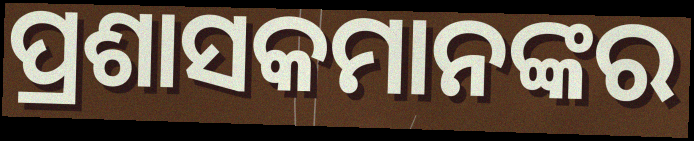
ପ୍ରଶାସକମାନଙ୍କର